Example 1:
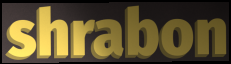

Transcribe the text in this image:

shrabon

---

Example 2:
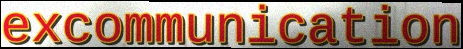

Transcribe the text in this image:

excommunication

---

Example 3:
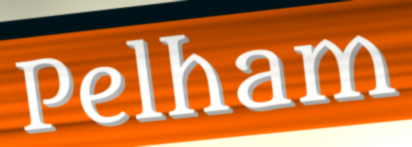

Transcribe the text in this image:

Pelham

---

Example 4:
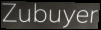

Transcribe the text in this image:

Zubuyer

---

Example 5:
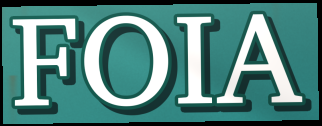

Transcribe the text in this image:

FOIA